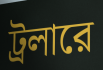
ট্রলারে